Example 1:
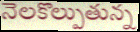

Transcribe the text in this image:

నెలకొల్పుతున్న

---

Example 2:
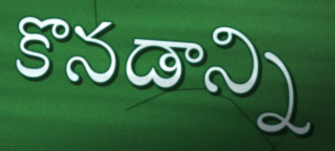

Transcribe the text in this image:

కొనడాన్ని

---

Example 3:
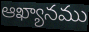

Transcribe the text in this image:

ఆఖ్యానము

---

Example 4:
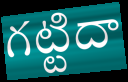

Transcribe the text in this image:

గట్టిదా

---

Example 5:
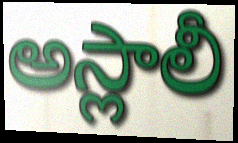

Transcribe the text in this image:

అస్లాలీ